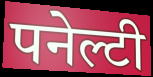
पनेल्टी